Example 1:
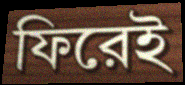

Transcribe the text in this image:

ফিরেই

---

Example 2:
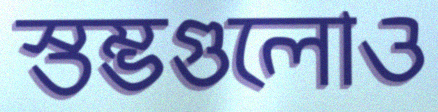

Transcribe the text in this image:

স্তম্ভগুলোও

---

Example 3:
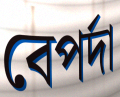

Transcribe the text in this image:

বেপর্দা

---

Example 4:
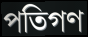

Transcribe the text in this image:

পতিগণ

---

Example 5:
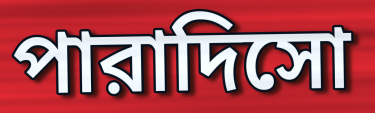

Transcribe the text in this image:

পারাদিসো